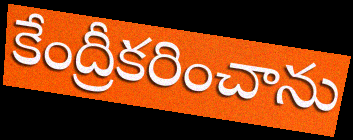
కేంద్రీకరించాను